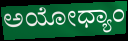
ಅಯೋಧ್ಯಾಂ